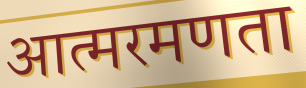
आत्मरमणता